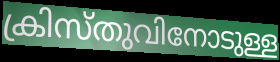
ക്രിസ്തുവിനോടുള്ള